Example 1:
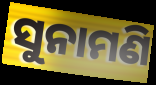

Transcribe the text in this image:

ସୁନାମଣି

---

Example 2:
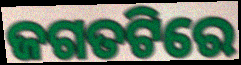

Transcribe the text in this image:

ଜଗତଟିରେ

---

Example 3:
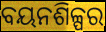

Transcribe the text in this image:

ବୟନଶିଳ୍ପର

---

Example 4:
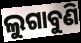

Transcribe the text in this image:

ଲୁଗାବୁଣି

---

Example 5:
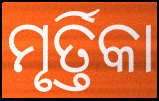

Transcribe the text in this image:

ମୃର୍ତ୍ତିକା